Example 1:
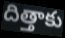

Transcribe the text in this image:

దిత్తాకు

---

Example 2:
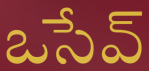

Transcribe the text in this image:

ఒసేవ్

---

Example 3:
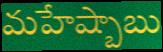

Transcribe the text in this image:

మహేష్బాబు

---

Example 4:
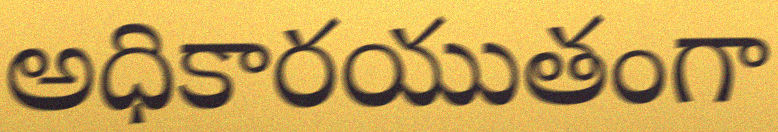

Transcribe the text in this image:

అధికారయుతంగా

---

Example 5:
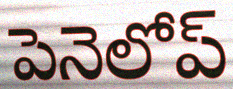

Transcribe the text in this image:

పెనెలోప్